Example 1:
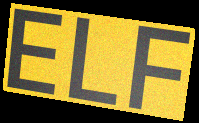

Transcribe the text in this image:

ELF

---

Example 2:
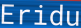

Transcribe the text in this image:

Eridu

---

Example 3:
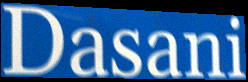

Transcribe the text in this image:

Dasani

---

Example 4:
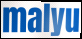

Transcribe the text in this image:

malyu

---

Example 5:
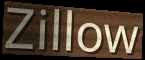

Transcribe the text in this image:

Zillow